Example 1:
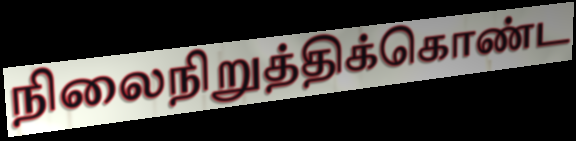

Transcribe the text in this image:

நிலைநிறுத்திக்கொண்ட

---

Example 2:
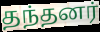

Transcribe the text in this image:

தந்தனர்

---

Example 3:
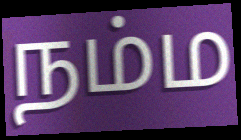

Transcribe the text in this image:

நம்ம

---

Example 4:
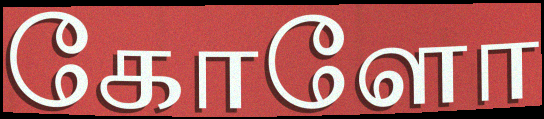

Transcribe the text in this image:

கோளோ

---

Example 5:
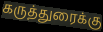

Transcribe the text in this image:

கருத்துரைக்கு